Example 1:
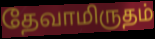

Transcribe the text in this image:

தேவாமிருதம்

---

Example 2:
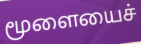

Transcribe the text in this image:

மூளையைச்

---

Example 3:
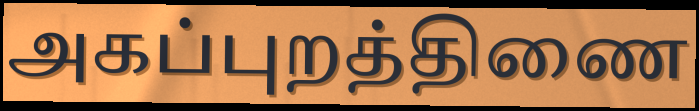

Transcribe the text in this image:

அகப்புறத்திணை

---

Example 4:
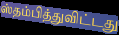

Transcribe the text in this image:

ஸ்தம்பித்துவிட்டது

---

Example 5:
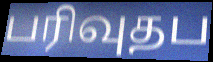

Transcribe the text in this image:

பரிவுதப